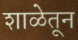
शाळेतून